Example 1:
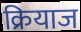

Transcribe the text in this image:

क्रियाज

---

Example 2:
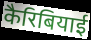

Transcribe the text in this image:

कैरिबियाई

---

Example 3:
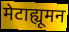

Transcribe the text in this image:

मेटाह्यूमन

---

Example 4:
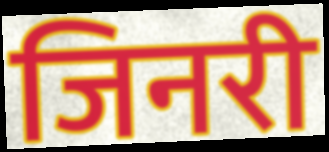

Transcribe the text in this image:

जिनरी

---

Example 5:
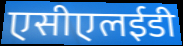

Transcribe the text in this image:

एसीएलईडी